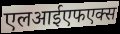
एलआईएफएक्स